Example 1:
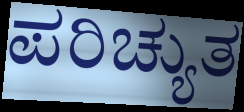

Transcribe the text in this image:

ಪರಿಚ್ಯುತ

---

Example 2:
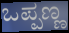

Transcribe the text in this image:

ಒಪ್ಪಣ್ಣ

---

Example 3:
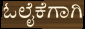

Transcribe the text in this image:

ಓಲೈಕೆಗಾಗಿ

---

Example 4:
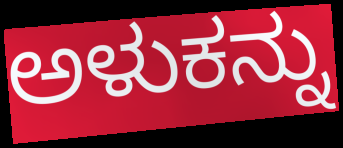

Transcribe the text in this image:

ಅಳುಕನ್ನು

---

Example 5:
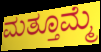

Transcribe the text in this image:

ಮತ್ತೂಮ್ಮೆ